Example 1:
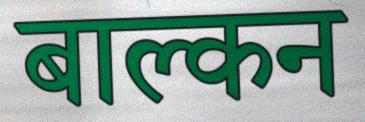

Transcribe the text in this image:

बाल्कन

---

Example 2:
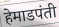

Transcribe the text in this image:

हेमाडपंती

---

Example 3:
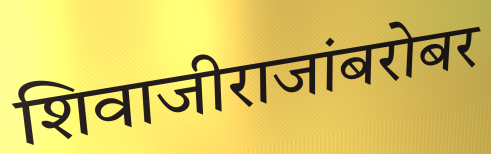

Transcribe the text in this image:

शिवाजीराजांबरोबर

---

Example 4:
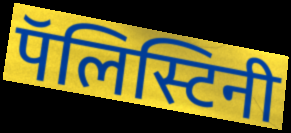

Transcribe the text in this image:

पॅलिस्टिनी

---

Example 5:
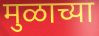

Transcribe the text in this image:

मुळाच्या